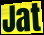
Jat